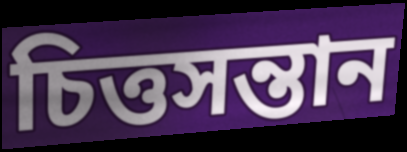
চিত্তসন্তান